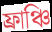
ফ্রাঞ্চি